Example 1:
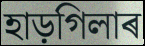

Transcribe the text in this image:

হাড়গিলাৰ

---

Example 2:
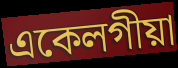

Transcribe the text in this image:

একেলগীয়া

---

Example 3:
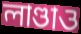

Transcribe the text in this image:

লাণ্ডাও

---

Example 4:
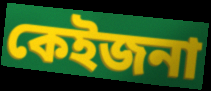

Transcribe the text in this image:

কেইজনা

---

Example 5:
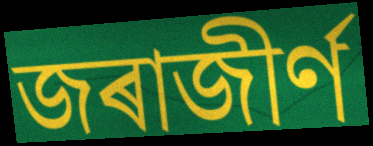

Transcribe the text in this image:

জৰাজীৰ্ণ